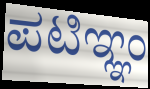
ಪಟಿಞ್ಞಂ